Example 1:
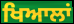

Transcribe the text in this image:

ਖਿਆਲਾਂ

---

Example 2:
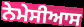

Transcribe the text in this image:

ਨੇਮੇਸੀਆਸ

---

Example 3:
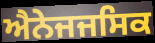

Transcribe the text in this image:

ਐਨੇਜਜਸਿਕ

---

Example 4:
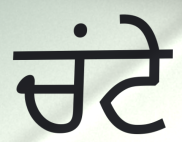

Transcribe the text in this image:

ਚਂਟੇ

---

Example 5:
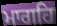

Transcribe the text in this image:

ਮਾਗਹਿ